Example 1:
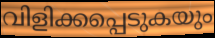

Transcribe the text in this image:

വിളിക്കപ്പെടുകയും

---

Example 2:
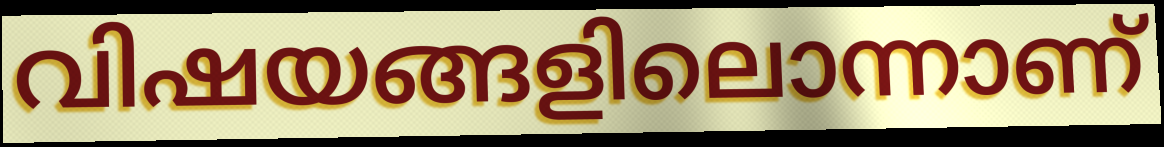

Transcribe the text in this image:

വിഷയങ്ങളിലൊന്നാണ്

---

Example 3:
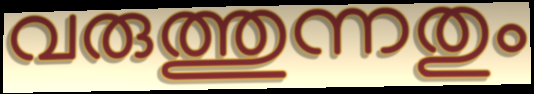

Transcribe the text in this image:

വരുത്തുന്നതും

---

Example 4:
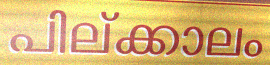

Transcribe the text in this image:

പില്ക്കാലം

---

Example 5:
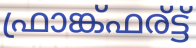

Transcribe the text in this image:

ഫ്രാങ്ക്ഫര്ട്ട്